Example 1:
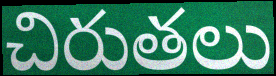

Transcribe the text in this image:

చిరుతలు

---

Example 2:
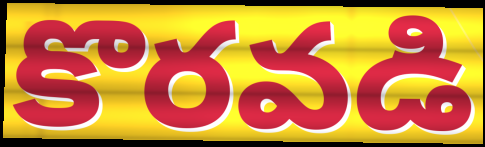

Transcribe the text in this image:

కొరవడి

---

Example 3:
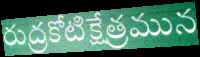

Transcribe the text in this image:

రుద్రకోటిక్షేత్రమున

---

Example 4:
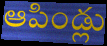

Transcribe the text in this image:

ఆపిండ్లు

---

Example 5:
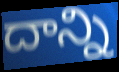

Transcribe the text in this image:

దాన్ని